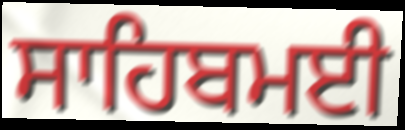
ਸਾਹਿਬਮਈ